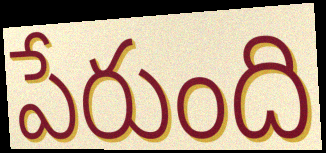
పేరుంది